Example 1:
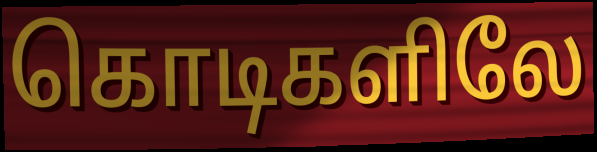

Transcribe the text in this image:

கொடிகளிலே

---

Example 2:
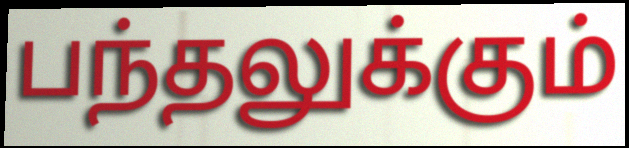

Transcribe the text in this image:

பந்தலுக்கும்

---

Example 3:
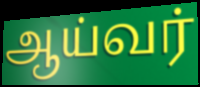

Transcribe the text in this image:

ஆய்வர்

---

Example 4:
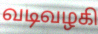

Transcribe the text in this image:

வடிவழகி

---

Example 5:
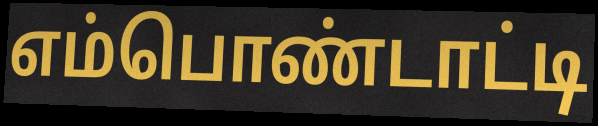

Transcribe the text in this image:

எம்பொண்டாட்டி